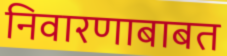
निवारणाबाबत